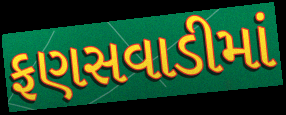
ફણસવાડીમાં